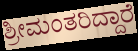
ಶ್ರೀಮಂತರಿದ್ದಾರೆ